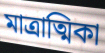
মাত্রাত্মিকা